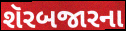
શૅરબજારના